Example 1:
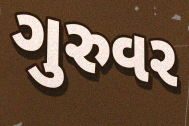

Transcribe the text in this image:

ગુરુવર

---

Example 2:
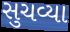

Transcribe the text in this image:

સુચવ્યા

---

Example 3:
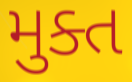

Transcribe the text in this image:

મુક્ત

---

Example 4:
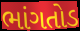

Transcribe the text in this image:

ભાંગતોડ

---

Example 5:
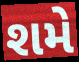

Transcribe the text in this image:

શમે